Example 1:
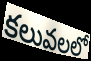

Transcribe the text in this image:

కలువలలో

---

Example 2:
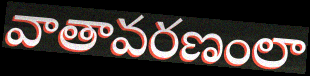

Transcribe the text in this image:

వాతావరణంలా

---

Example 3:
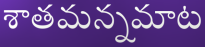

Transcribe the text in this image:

శాతమన్నమాట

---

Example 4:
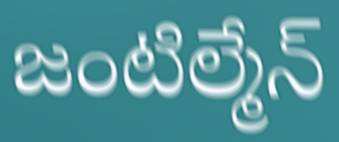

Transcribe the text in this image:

జంటిల్మేన్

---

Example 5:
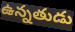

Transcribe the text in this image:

ఉన్నతుడు